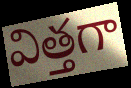
విత్తగా